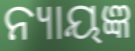
ନ୍ୟାୟଜ୍ଞ